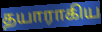
தயாராகிய